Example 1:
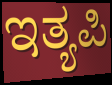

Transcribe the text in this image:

ಇತ್ಯಪಿ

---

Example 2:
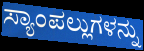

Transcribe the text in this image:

ಸ್ಯಾಂಪಲ್ಲುಗಳನ್ನು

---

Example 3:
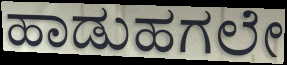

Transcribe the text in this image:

ಹಾಡುಹಗಲೇ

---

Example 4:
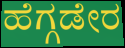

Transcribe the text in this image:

ಹೆಗ್ಗಡೇರ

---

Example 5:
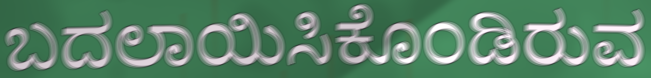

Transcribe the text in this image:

ಬದಲಾಯಿಸಿಕೊಂಡಿರುವ